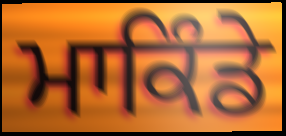
ਮਾਕਿੰਡੇ